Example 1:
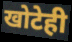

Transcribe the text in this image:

खोटेही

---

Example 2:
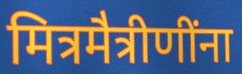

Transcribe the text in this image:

मित्रमैत्रीणींना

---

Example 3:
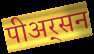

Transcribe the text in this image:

पीअर्सन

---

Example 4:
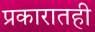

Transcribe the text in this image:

प्रकारातही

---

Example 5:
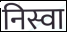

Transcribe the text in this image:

निस्वा